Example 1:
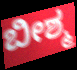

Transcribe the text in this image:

ಬೀಶ್ಮ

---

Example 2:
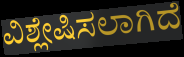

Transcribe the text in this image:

ವಿಶ್ಲೇಷಿಸಲಾಗಿದೆ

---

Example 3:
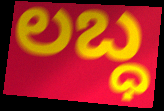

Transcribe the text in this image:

ಲಬ್ಧ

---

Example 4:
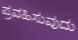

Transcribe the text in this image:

ಪ್ರವಹಿಸುವುದು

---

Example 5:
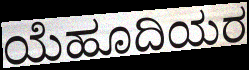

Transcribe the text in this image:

ಯೆಹೂದಿಯರ